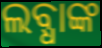
ଲବ୍ଧାଙ୍କ